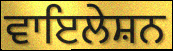
ਵਾਇਲੇਸ਼ਨ